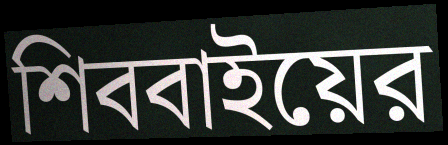
শিববাইয়ের